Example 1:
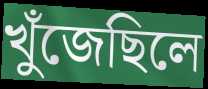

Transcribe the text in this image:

খুঁজেছিলে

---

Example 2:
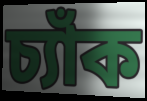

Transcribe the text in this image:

চ্যাঁক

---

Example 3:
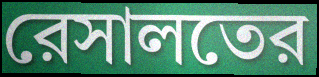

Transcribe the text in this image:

রেসালতের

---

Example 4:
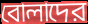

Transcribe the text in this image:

বোলাদের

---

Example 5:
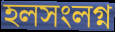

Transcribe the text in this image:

হলসংলগ্ন